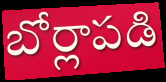
బోర్లాపడి